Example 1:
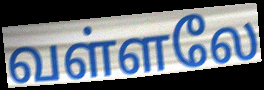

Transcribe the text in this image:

வள்ளலே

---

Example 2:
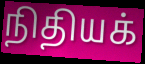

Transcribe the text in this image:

நிதியக்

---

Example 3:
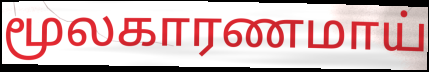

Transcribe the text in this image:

மூலகாரணமாய்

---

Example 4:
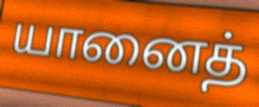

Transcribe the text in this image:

யானைத்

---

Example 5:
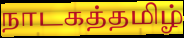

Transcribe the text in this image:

நாடகத்தமிழ்